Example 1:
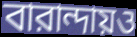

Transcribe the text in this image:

বারান্দায়ও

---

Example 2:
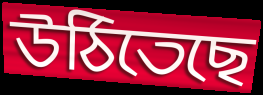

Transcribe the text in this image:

উঠিতেছে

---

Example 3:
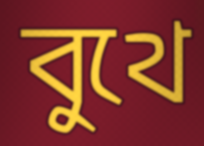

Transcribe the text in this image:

বুথে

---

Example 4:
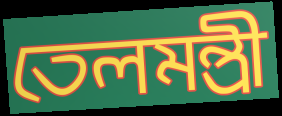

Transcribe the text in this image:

তেলমন্ত্রী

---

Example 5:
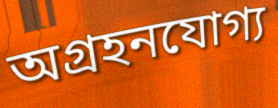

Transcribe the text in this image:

অগ্রহনযোগ্য